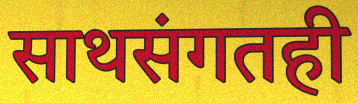
साथसंगतही